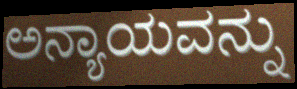
ಅನ್ಯಾಯವನ್ನು